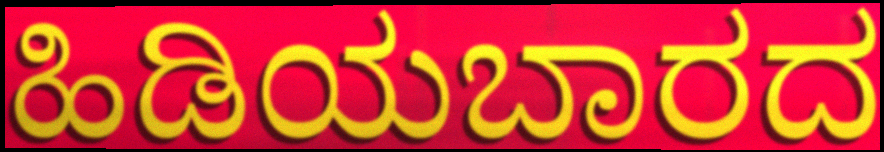
ಹಿಡಿಯಬಾರದ